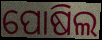
ପୋଷିଲ